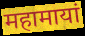
महामायां